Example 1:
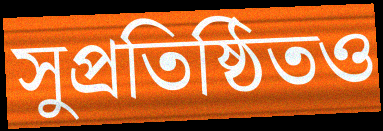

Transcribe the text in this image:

সুপ্রতিষ্ঠিতও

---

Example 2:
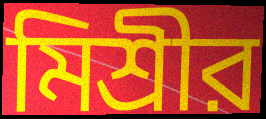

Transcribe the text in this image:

মিশ্রীর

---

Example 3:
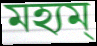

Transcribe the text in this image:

মহ্যম্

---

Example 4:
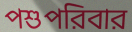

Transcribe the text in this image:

পশুপরিবার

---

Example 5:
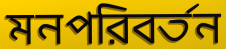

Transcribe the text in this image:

মনপরিবর্তন